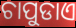
ଚାପୁଡାଏ